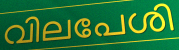
വിലപേശി